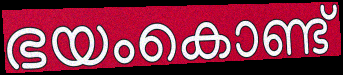
ഭയംകൊണ്ട്